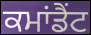
ਕਮਾਂਡੈਂਟ